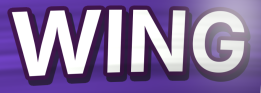
WING